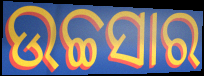
ଉଚ୍ଚସାର